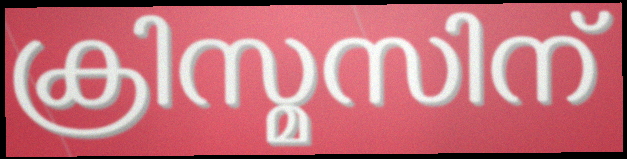
ക്രിസ്മസിന്